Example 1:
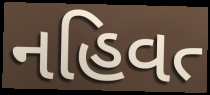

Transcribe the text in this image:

નહિવત્‍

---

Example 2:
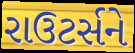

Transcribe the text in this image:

રાઉટર્સને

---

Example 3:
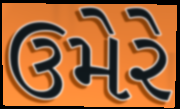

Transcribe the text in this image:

ઉમેરે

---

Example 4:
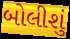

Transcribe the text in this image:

બોલીશું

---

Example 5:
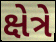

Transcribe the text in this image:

ક્ષેત્રે